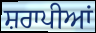
ਸ਼ਰਾਪੀਆਂ